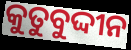
କୁତୁବୁଦ୍ଦୀନ